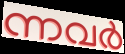
ന്നവർ